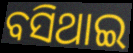
ବସିଥାଇ